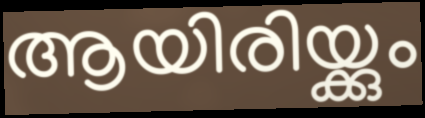
ആയിരിയ്ക്കും